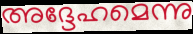
അദ്ദേഹമെന്നു